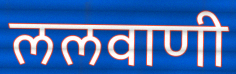
ललवाणी